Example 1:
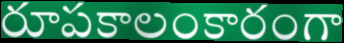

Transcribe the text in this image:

రూపకాలంకారంగా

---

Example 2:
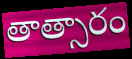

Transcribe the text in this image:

తాత్సారం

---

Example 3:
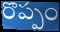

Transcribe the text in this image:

రొప్పం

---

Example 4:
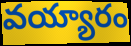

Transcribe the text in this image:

వయ్యారం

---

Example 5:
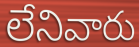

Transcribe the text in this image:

లేనివారు